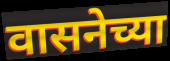
वासनेच्या